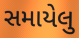
સમાયેલુ